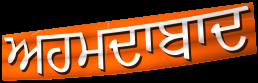
ਅਹਮਦਾਬਾਦ